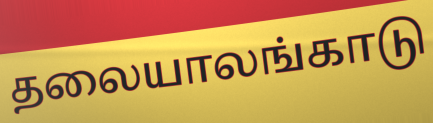
தலையாலங்காடு